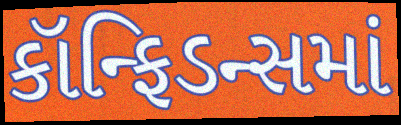
કૉન્ફિડન્સમાં